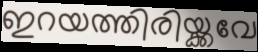
ഇറയത്തിരിയ്ക്കവേ